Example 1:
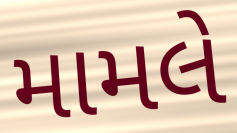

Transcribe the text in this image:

મામલે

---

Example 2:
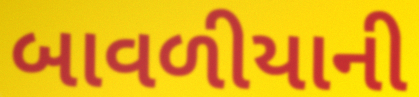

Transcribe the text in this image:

બાવળીયાની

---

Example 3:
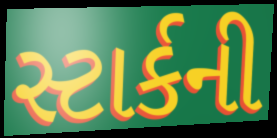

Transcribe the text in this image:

સ્ટાર્કની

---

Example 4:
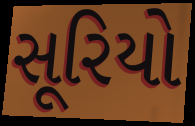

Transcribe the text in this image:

સૂરિયો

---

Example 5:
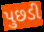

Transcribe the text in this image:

પુછડી